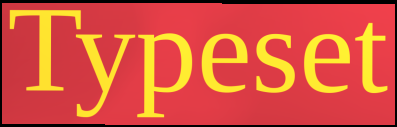
Typeset